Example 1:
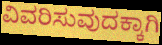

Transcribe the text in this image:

ವಿವರಿಸುವುದಕ್ಕಾಗಿ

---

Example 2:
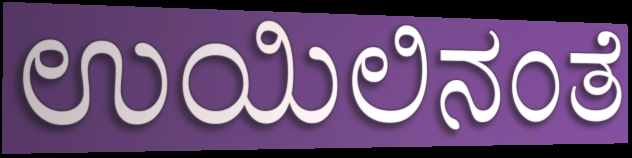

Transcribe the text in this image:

ಉಯಿಲಿನಂತೆ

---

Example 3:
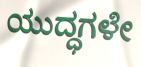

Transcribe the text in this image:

ಯುದ್ಧಗಳೇ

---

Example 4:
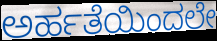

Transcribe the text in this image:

ಅರ್ಹತೆಯಿಂದಲೇ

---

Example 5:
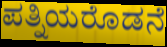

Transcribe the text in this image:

ಪತ್ನಿಯರೊಡನೆ